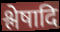
श्लेषादि